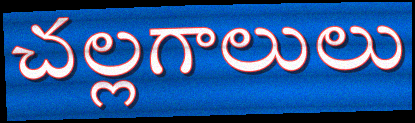
చల్లగాలులు